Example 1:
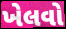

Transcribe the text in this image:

ખેલવો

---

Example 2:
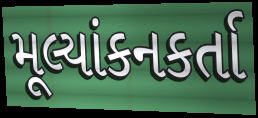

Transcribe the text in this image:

મૂલ્યાંકનકર્તા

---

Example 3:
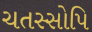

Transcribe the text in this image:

ચતસ્સોપિ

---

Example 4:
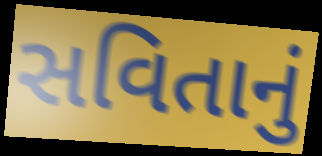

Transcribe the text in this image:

સવિતાનું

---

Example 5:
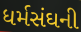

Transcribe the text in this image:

ધર્મસંઘની